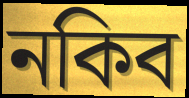
নকিব